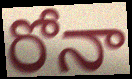
రోనా